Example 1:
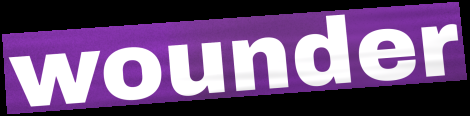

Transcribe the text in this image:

wounder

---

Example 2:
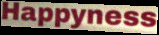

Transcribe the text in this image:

Happyness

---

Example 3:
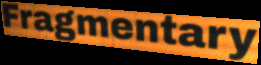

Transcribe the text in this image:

Fragmentary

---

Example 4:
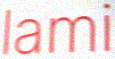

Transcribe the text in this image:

lami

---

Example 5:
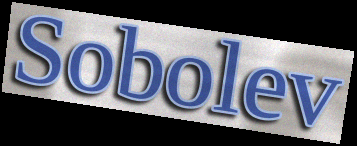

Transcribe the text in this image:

Sobolev